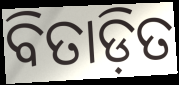
ବିତାଡ଼ିତ